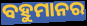
ବହୁମାନର